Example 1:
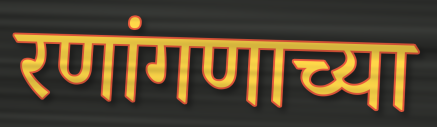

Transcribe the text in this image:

रणांगणाच्या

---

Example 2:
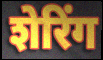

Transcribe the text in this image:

शेरिंग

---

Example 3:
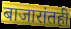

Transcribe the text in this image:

बाजारांतही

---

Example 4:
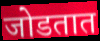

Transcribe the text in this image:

जोडतात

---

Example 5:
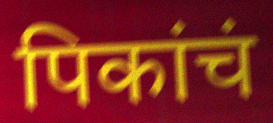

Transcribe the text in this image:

पिकांचं